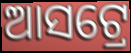
ଆସଟ୍ରେ